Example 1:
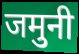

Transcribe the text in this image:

जमुनी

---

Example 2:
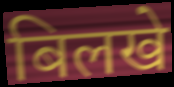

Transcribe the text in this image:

बिलखे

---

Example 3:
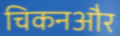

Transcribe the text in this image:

चिकनऔर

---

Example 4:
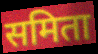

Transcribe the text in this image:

समिता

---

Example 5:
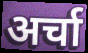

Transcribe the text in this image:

अर्चा